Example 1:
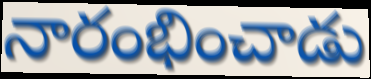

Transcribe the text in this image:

నారంభించాడు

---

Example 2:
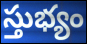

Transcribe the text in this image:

స్తుభ్యం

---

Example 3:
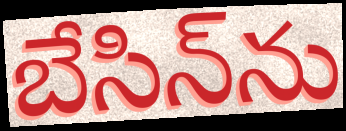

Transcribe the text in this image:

బేసిన్‌ను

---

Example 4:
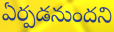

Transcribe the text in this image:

ఏర్పడనుందని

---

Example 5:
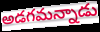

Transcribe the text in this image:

అడగమన్నాడు